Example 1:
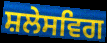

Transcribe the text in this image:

ਸ਼ਲੇਸਵਿਗ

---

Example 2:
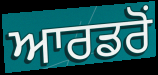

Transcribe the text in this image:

ਆਰਡਰੋਂ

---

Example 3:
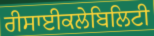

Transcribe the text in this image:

ਰੀਸਾਈਕਲੇਬਿਲਿਟੀ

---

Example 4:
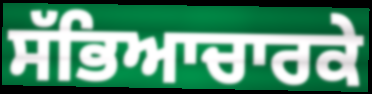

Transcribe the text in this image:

ਸੱਭਿਆਚਾਰਕੇ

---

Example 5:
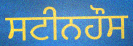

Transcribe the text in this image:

ਸਟੀਨਹੌਸ